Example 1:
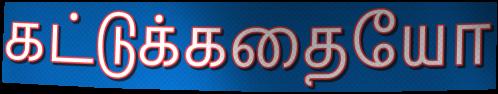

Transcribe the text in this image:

கட்டுக்கதையோ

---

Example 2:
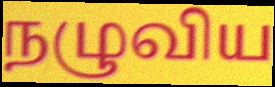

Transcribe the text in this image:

நழுவிய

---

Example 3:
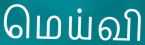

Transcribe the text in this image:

மெய்வி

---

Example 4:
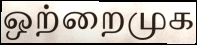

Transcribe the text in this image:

ஒற்றைமுக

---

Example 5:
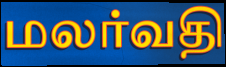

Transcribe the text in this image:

மலர்வதி